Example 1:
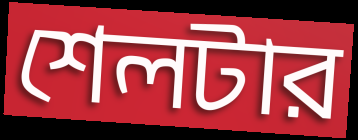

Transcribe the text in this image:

শেলটার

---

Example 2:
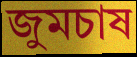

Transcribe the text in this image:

জুমচাষ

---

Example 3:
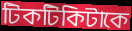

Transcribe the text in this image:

টিকটিকিটাকে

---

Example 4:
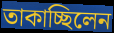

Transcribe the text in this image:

তাকাচ্ছিলেন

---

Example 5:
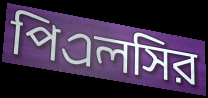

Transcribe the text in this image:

পিএলসির